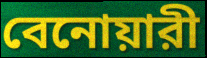
বেনোয়ারী